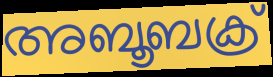
അബൂബക്ര്